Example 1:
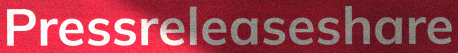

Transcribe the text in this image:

Pressreleaseshare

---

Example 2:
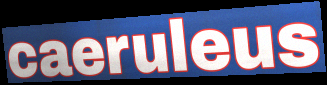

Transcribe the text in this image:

caeruleus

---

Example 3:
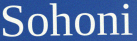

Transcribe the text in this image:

Sohoni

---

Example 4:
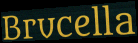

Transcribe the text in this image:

Brucella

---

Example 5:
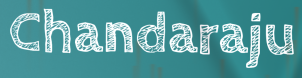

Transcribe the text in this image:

Chandaraju